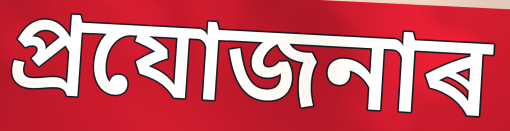
প্ৰযোজনাৰ